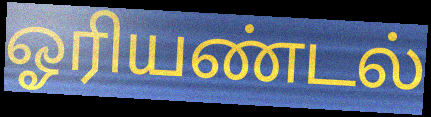
ஓரியண்டல்